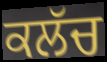
ਕਲੱਚ